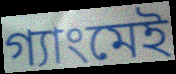
গ্যাংমেই